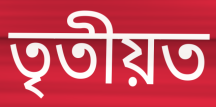
তৃতীয়ত